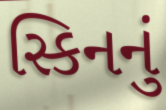
સ્કિનનું